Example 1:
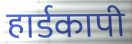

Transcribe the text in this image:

हार्डकापी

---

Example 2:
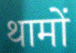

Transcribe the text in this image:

थामों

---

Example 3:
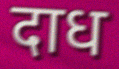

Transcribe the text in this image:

दाध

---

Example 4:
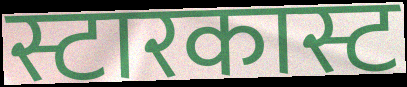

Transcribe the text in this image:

स्टारकास्ट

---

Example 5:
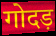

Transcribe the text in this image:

गोदड़